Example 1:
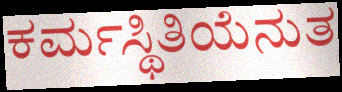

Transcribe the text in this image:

ಕರ್ಮಸ್ಥಿತಿಯೆನುತ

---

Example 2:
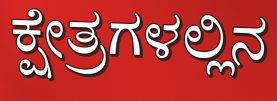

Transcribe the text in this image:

ಕ್ಷೇತ್ರಗಳಲ್ಲಿನ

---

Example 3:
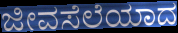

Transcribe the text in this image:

ಜೀವಸೆಲೆಯಾದ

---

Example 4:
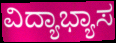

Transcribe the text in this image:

ವಿದ್ಯಾಭ್ಯಾಸ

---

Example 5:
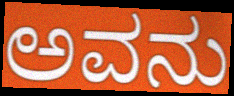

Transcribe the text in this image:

ಅವನು